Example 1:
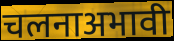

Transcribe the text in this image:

चलनाअभावी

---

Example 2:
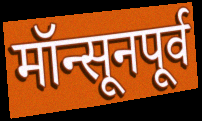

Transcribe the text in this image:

मॉन्सूनपूर्व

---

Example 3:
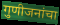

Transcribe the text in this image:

गुणीजनांचा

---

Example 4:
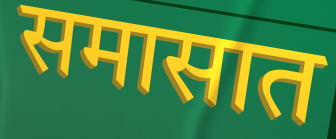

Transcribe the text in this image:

समासात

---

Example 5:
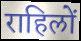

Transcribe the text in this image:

राहिलों